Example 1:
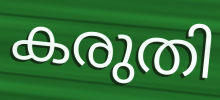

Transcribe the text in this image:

കരുതി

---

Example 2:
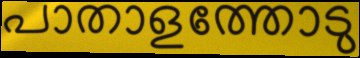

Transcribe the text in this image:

പാതാളത്തോടു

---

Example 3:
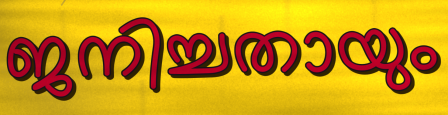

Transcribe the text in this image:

ജനിച്ചതായും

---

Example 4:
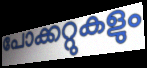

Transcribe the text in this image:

പോക്കറ്റുകളും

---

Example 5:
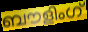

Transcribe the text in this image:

ബൗളിംഗ്